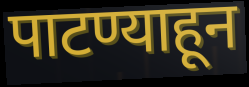
पाटण्याहून